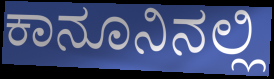
ಕಾನೂನಿನಲ್ಲಿ